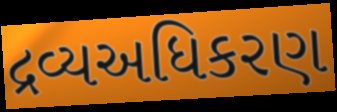
દ્રવ્યઅધિકરણ